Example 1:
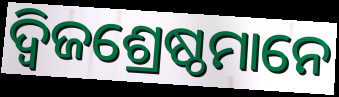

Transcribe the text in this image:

ଦ୍ୱିଜଶ୍ରେଷ୍ଠମାନେ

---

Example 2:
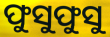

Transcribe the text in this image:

ଫୁସୁଫୁସୁ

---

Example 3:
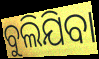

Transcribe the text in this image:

ବୁଲିଯିବା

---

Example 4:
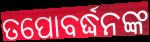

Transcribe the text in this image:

ତପୋବର୍ଦ୍ଧନଙ୍କ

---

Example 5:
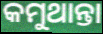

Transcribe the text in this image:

କମୁଥାନ୍ତା